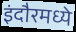
इंदौरमध्ये